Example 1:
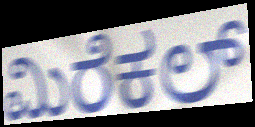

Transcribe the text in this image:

ಮಿರೆಕಲ್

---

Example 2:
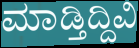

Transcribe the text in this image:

ಮಾಡ್ತಿದ್ದಿವಿ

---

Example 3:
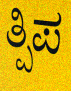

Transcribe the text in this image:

ತ್ಪಿಪ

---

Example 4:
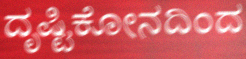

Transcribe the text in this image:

ದೃಷ್ಟಿಕೋನದಿಂದ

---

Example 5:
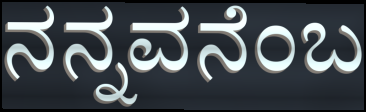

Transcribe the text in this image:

ನನ್ನವನೆಂಬ